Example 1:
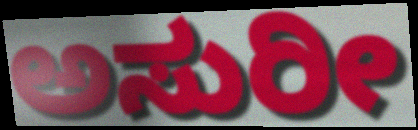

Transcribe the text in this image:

ಅಸುರೀ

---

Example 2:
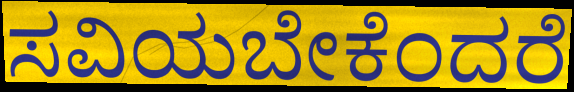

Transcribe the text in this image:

ಸವಿಯಬೇಕೆಂದರೆ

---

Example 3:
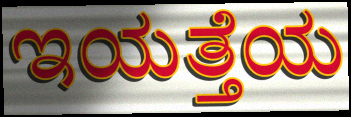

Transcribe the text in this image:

ಇಯತ್ತೆಯ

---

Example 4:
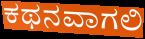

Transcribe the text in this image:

ಕಥನವಾಗಲಿ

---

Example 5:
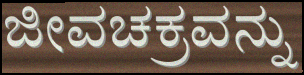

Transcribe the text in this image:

ಜೀವಚಕ್ರವನ್ನು